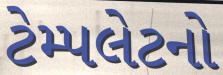
ટેમ્પલેટનો